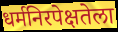
धर्मनिरपेक्षतेला